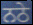
ਨਠੇ